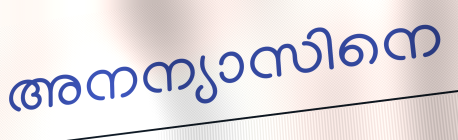
അനന്യാസിനെ